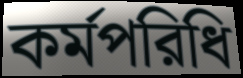
কর্মপরিধি